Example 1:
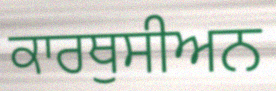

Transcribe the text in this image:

ਕਾਰਥੁਸੀਅਨ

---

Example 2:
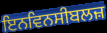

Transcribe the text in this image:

ਇਨਵਿਨਸੀਬਲਜ਼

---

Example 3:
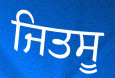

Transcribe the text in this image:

ਜਿਤਸੂ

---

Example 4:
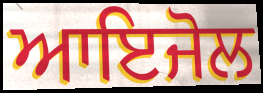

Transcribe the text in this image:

ਆਇਜੋਲ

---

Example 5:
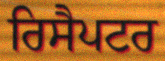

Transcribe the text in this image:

ਰਿਸੈਪਟਰ